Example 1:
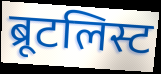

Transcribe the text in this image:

ब्रूटलिस्ट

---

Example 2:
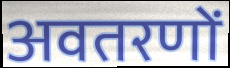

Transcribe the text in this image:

अवतरणों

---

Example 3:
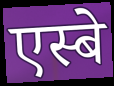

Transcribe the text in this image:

एस्बे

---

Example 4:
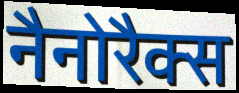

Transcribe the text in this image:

नैनोरैक्स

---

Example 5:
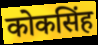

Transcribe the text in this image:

कोकसिंह